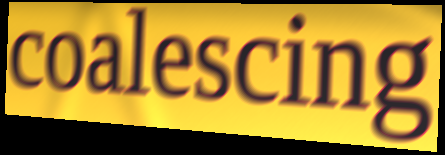
coalescing